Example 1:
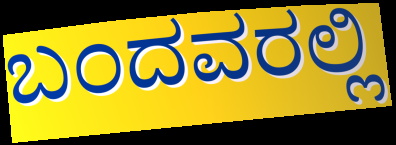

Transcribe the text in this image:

ಬಂದವರಲ್ಲಿ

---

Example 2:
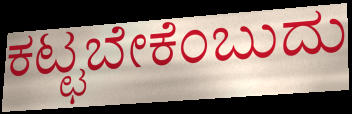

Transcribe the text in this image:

ಕಟ್ಟಬೇಕೆಂಬುದು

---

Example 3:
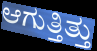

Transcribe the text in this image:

ಆಗುತ್ತಿತ್ತು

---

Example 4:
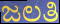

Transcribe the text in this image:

ಜಲತಿ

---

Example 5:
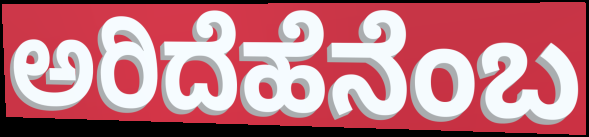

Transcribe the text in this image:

ಅರಿದೆಹೆನೆಂಬ